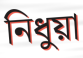
নিধুয়া